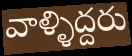
వాళ్ళిద్దరు